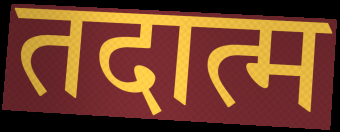
तदात्म